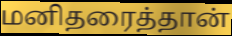
மனிதரைத்தான்